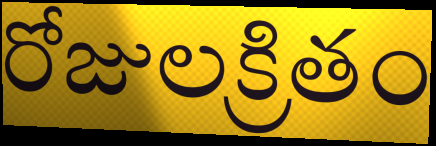
రోజులక్రితం